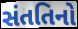
સંતતિનો